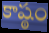
కాష్ఠం